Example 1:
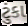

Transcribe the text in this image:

ટુંકા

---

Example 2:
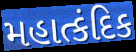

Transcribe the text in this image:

મહાત્કંદિક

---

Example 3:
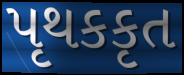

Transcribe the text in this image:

પૃથકકૃત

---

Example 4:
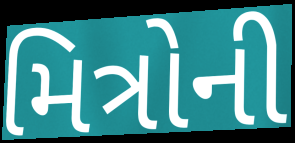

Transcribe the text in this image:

મિત્રોની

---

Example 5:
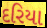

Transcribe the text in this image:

દરિયા